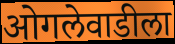
ओगलेवाडीला